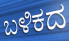
ಬಳಿಕದ